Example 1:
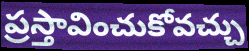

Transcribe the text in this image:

ప్రస్తావించుకోవచ్చు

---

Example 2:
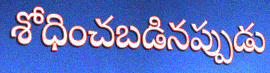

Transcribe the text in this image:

శోధించబడినప్పుడు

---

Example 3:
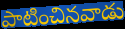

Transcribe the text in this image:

పాటించినవాడు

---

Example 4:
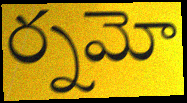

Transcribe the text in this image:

ర్నమో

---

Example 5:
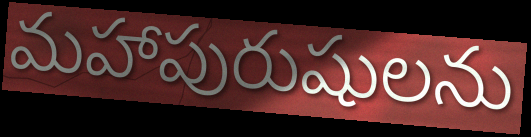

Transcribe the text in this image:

మహాపురుషులను